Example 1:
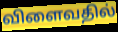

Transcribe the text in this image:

விளைவதில்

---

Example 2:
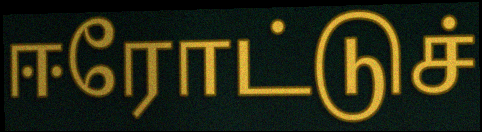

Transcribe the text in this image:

ஈரோட்டுச்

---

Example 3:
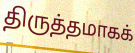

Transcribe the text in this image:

திருத்தமாகக்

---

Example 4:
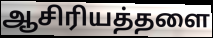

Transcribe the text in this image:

ஆசிரியத்தளை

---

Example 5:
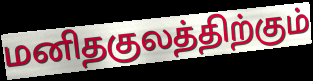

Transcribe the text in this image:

மனிதகுலத்திற்கும்